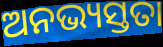
ଅନଭ୍ୟସ୍ତତା